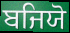
ਬਜਿਯੋ